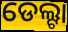
ଡେଲ୍ଟା